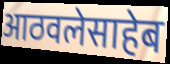
आठवलेसाहेब